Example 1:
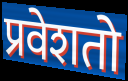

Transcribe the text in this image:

प्रवेशतो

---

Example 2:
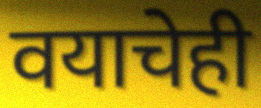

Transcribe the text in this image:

वयाचेही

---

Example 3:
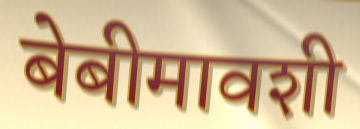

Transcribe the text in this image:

बेबीमावशी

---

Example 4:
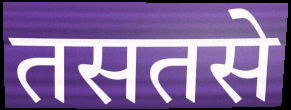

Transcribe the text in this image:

तसतसे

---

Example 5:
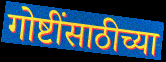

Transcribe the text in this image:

गोष्टींसाठीच्या